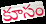
కూసం